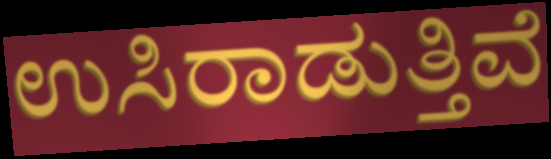
ಉಸಿರಾಡುತ್ತಿವೆ